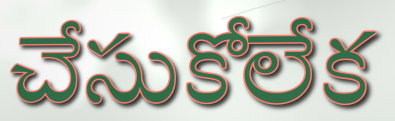
చేసుకోలేక